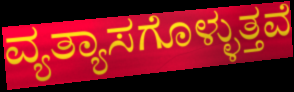
ವ್ಯತ್ಯಾಸಗೊಳ್ಳುತ್ತವೆ